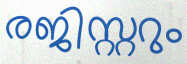
രജിസ്റ്ററും